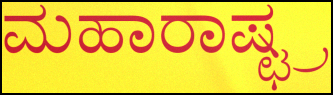
ಮಹಾರಾಷ್ಟ್ರ